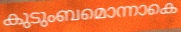
കുടുംബമൊന്നാകെ